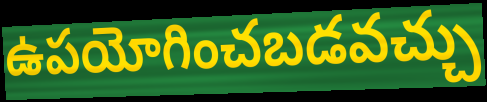
ఉపయోగించబడవచ్చు